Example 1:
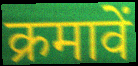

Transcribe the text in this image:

क्रमावें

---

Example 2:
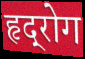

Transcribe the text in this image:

हृद्‍रोग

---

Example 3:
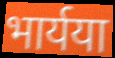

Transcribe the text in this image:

भार्यया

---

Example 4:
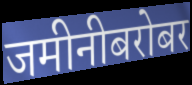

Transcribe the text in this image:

जमीनीबरोबर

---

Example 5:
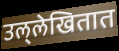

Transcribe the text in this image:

उल्लेखितात